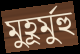
মুহূর্মুহু